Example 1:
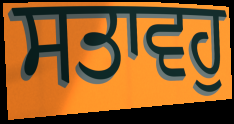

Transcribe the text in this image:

ਸਤਾਵਹੁ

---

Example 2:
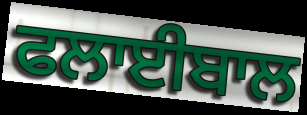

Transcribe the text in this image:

ਫਲਾਈਬਾਲ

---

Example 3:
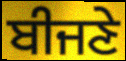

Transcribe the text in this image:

ਬੀਜਣੇ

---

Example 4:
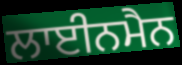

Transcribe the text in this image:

ਲਾਈਨਮੈਨ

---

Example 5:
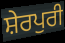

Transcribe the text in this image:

ਸ਼ੇਰਪੁਰੀ